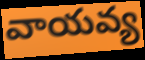
వాయవ్య